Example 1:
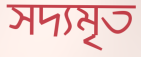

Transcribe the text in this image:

সদ্যমৃত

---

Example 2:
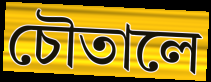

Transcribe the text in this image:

চৌতালে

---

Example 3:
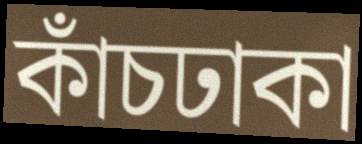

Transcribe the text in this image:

কাঁচঢাকা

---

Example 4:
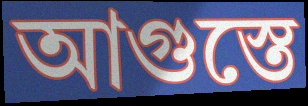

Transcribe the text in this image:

আগুস্তে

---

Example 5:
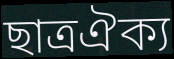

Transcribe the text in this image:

ছাত্রঐক্য